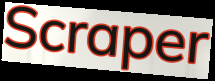
Scraper